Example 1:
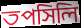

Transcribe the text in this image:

তপসিলি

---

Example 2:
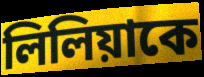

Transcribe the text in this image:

লিলিয়াকে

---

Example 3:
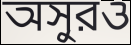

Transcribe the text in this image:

অসুরও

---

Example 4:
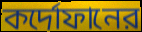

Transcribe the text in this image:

কর্দোফানের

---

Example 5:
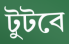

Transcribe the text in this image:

টুটবে